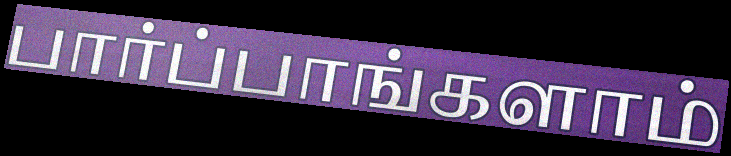
பார்ப்பாங்களாம்